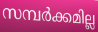
സമ്പർക്കമില്ല